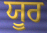
ਯੂਰ